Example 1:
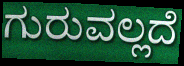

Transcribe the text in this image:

ಗುರುವಲ್ಲದೆ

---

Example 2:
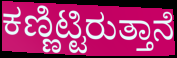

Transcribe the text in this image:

ಕಣ್ಣಿಟ್ಟಿರುತ್ತಾನೆ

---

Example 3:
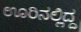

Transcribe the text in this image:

ಊರಿನಲ್ಲಿದ್ದ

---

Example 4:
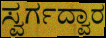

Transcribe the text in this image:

ಸ್ವರ್ಗದ್ವಾರ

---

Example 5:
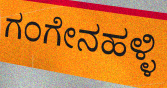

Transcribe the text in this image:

ಗಂಗೇನಹಳ್ಳಿ